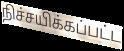
நிச்சயிக்கப்பட்ட